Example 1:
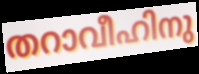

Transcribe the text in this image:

തറാവീഹിനു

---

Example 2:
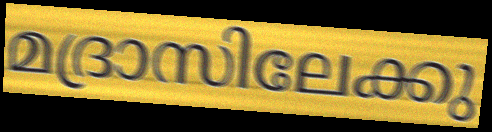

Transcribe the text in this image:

മദ്രാസിലേക്കു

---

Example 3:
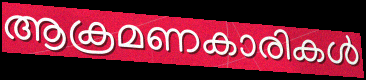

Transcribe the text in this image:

ആക്രമണകാരികൾ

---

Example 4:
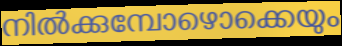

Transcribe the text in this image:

നിൽക്കുമ്പോഴൊക്കെയും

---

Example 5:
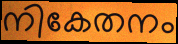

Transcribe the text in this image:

നികേതനം